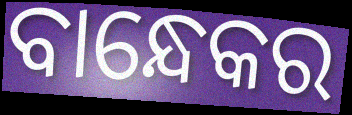
ବାନ୍ଧେକର